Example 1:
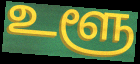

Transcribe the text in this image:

உளூ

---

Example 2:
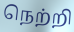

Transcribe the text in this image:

நெற்றி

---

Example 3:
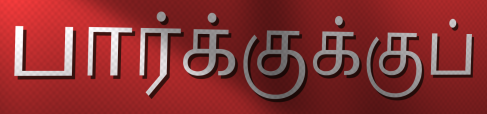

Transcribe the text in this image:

பார்க்குக்குப்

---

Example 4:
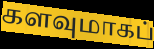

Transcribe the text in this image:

களவுமாகப்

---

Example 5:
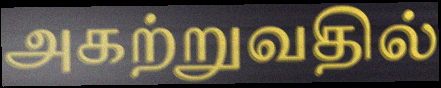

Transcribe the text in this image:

அகற்றுவதில்